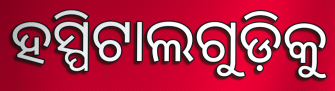
ହସ୍ପିଟାଲଗୁଡ଼ିକୁ